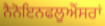
ਨੈਨੋਇਨਫਲੂਐਂਸਰਾਂ